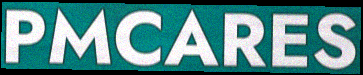
PMCARES